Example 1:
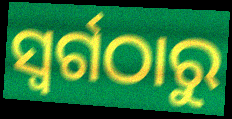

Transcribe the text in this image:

ସ୍ଵର୍ଗଠାରୁ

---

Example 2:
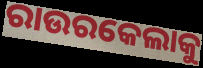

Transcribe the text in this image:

ରାଉରକେଲାକୁ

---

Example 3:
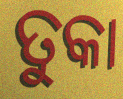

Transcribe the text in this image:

ତୁକା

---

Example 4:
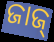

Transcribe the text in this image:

ଜାଜ୍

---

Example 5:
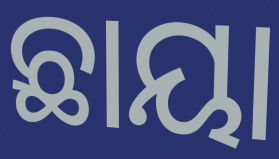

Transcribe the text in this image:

ଛାୟା